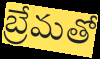
బ్రేమతో